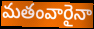
మతంవారైనా